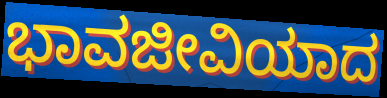
ಭಾವಜೀವಿಯಾದ